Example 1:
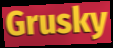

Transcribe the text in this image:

Grusky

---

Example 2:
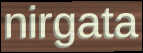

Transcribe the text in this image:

nirgata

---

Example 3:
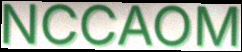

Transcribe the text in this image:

NCCAOM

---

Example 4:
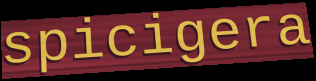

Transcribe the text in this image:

spicigera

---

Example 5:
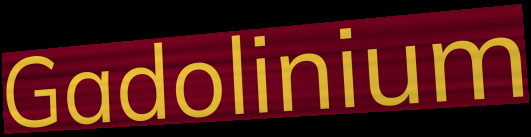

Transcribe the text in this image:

Gadolinium